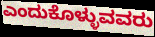
ಎಂದುಕೊಳ್ಳುವವರು